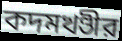
কদমখণ্ডীর